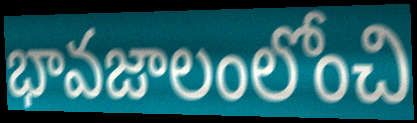
భావజాలంలోంచి